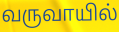
வருவாயில்